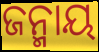
ଜନ୍ମାୟ